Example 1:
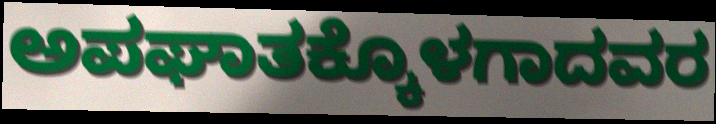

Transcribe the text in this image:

ಅಪಘಾತಕ್ಕೊಳಗಾದವರ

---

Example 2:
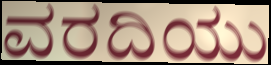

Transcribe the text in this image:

ವರದಿಯು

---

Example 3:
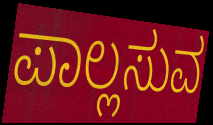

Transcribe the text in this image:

ಪಾಲ್ಲಸುವ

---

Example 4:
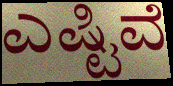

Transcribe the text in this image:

ಎಷ್ಟಿವೆ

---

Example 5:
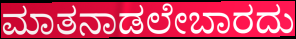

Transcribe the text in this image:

ಮಾತನಾಡಲೇಬಾರದು